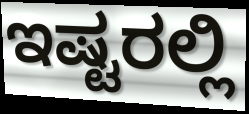
ಇಷ್ಟರಲ್ಲಿ